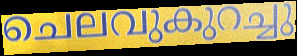
ചെലവുകുറച്ചു